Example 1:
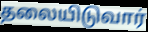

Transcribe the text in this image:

தலையிடுவார்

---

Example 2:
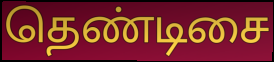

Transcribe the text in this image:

தெண்டிசை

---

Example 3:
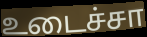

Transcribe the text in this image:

உடைச்சா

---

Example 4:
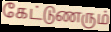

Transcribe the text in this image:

கேட்டுணரும்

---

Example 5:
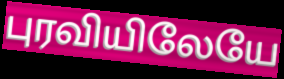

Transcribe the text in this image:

புரவியிலேயே